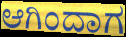
ಆಗಿಂದಾಗ